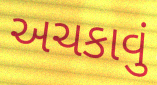
અચકાવું